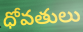
ధోవతులు